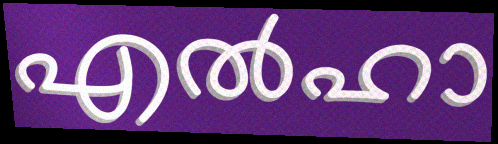
എൽഹാ